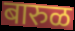
बारुळ